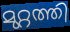
മുറ്റത്തി